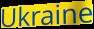
Ukraine